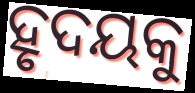
ହୃଦୟକୁ